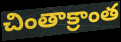
చింతాక్రాంత